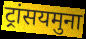
ट्रांसयमुना